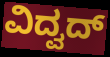
ವಿದ್ವದ್